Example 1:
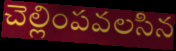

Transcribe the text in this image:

చెల్లింపవలసిన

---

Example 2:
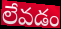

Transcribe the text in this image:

లేవడం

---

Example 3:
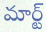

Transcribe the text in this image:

మార్ట్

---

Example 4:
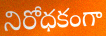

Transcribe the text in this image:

నిరోధకంగా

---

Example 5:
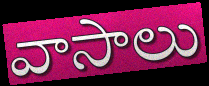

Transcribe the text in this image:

వాసాలు